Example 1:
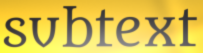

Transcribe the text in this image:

subtext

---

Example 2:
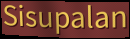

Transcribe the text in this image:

Sisupalan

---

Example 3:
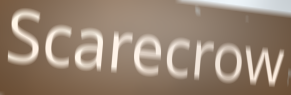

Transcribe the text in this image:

Scarecrow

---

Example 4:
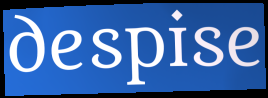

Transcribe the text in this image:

despise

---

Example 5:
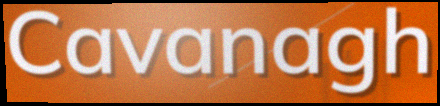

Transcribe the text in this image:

Cavanagh